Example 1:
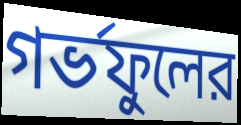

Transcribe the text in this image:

গর্ভফুলের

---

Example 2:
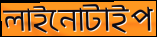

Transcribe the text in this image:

লাইনোটাইপ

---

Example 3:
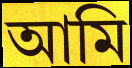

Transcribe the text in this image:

আমি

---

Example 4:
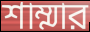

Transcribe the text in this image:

শাম্মার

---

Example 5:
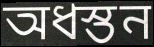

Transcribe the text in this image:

অধস্তন